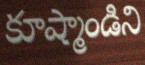
కూష్మాండిని